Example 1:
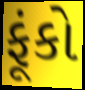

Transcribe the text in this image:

ફૂંકો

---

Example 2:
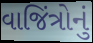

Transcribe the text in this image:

વાજિંત્રોનું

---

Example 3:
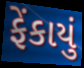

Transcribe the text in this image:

ફેંકાયું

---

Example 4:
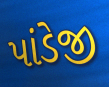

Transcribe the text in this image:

પાંડેજી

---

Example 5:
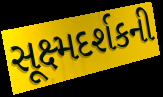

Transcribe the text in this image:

સૂક્ષ્મદર્શકની